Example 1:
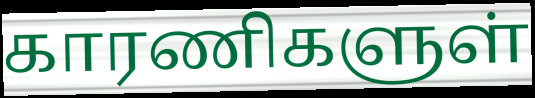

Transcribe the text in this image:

காரணிகளுள்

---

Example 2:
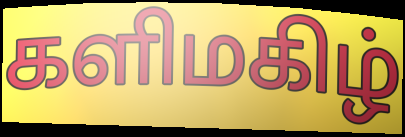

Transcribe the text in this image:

களிமகிழ்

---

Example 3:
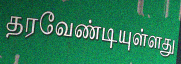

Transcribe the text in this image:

தரவேண்டியுள்ளது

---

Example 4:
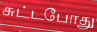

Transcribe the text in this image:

சுட்டபோது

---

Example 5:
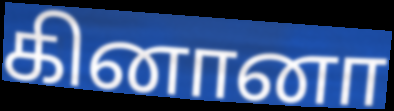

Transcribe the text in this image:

கினானா